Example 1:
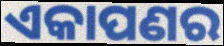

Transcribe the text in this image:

ଏକାପଣର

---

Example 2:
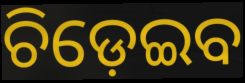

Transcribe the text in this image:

ଚିଡ଼େଇବ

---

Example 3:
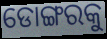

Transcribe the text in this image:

ଡୋଙ୍ଗରକୁ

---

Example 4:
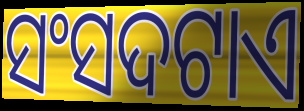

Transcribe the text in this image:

ସଂସଦଟାଏ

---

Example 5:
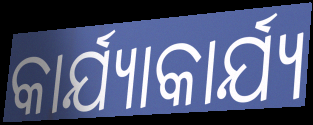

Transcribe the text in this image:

କାର୍ଯ୍ୟାକାର୍ଯ୍ୟ